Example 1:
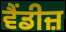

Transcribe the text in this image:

ਵੈਂਡੀਜ਼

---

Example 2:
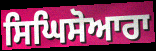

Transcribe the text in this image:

ਸਿਘਿਸੋਆਰਾ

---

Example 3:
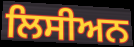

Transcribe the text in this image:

ਲਿਸੀਅਨ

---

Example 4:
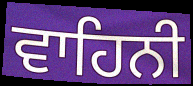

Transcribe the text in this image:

ਵਾਹਿਨੀ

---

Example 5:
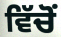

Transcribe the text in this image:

ਵਿੱਚੋੰ